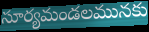
సూర్యమండలమునకు